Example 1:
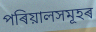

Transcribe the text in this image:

পৰিয়ালসমূহৰ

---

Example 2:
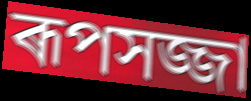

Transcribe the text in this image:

ৰূপসজ্জা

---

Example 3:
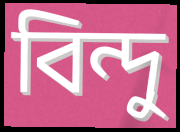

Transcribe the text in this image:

বিন্দু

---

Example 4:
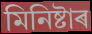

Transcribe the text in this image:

মিনিষ্টাৰ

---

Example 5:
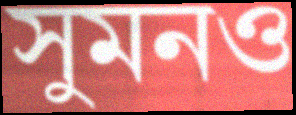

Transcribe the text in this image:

সুমনও